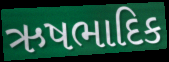
ઋષભાદિક